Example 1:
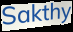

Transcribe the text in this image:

Sakthy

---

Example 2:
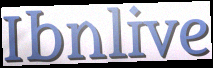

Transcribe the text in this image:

Ibnlive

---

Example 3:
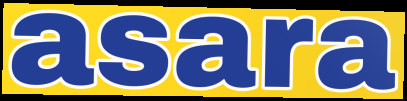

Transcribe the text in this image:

asara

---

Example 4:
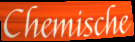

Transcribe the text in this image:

Chemische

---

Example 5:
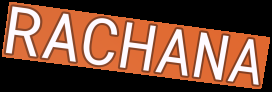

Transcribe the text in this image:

RACHANA